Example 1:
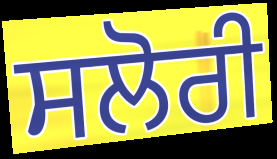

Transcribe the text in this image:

ਸਲੋਰੀ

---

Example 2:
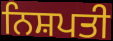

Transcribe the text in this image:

ਨਿਸ਼ਪਤੀ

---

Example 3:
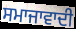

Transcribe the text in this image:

ਸਮਾਜਾਵਾਦੀ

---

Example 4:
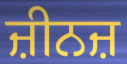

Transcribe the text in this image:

ਜ਼ੀਨਜ਼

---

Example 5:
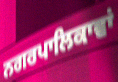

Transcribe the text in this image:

ਨਗਰਪਾਲਿਕਾਵਾਂ